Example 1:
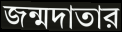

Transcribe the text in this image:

জন্মদাতার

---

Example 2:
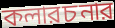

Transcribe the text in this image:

কলারচনার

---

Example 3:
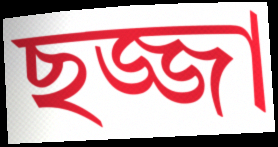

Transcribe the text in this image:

ছজ্জা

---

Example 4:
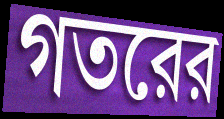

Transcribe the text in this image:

গতরের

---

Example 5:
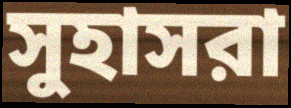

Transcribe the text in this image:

সুহাসরা